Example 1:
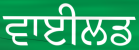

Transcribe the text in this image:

ਵਾਈਲਡ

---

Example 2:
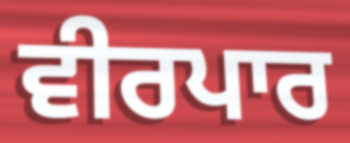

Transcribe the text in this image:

ਵੀਰਪਾਰ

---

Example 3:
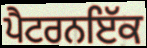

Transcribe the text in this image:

ਪੈਟਰਨਇੱਕ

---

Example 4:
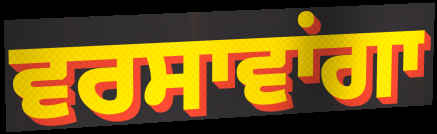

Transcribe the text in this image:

ਵਰਸਾਵਾਂਗਾ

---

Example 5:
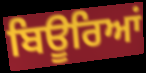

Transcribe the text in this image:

ਬਿਊਰਿਆਂ